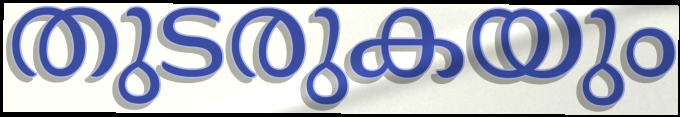
തുടരുകയും